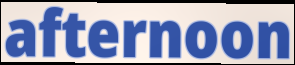
afternoon